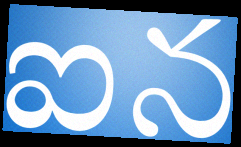
ఐన